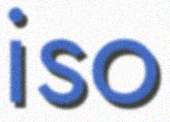
iso